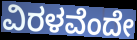
ವಿರಳವೆಂದೇ